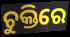
ଚୁକ୍ତିରେ